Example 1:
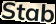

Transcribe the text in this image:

Stab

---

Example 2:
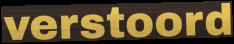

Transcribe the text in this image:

verstoord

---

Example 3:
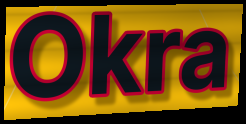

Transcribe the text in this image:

Okra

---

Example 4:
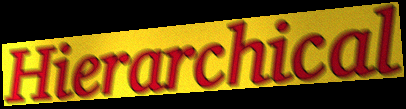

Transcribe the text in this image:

Hierarchical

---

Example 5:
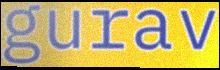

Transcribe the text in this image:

gurav